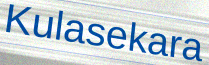
Kulasekara